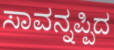
ಸಾವನ್ನಪ್ಪಿದ